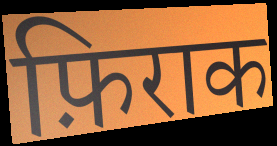
फ़िराक